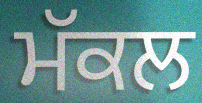
ਮੱਕਲ